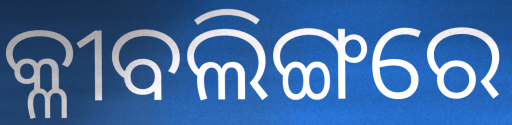
କ୍ଳୀବଲିଙ୍ଗରେ